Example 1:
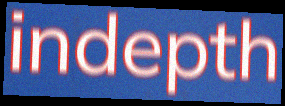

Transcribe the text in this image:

indepth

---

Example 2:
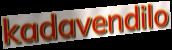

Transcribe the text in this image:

kadavendilo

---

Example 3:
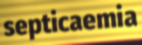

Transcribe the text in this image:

septicaemia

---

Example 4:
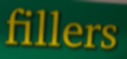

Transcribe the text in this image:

fillers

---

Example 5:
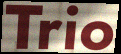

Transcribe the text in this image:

Trio